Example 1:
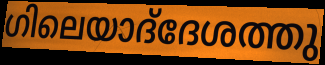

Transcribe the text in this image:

ഗിലെയാദ്‌ദേശത്തു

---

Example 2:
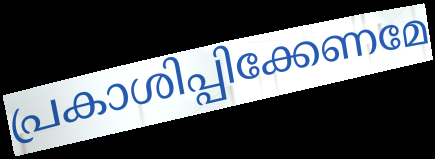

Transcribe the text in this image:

പ്രകാശിപ്പിക്കേണമേ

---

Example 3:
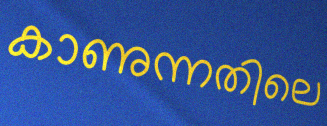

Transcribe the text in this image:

കാണുന്നതിലെ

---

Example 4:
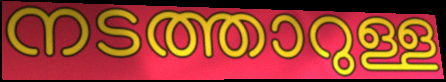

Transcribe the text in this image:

നടത്താറുള്ള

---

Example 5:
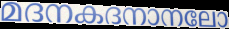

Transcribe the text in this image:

മദനകദനാനലോ